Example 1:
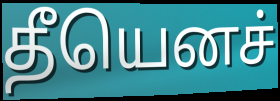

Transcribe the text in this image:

தீயெனச்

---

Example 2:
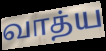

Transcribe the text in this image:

வாத்ய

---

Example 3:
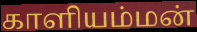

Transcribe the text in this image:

காளியம்மன்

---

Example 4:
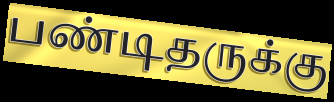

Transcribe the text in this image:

பண்டிதருக்கு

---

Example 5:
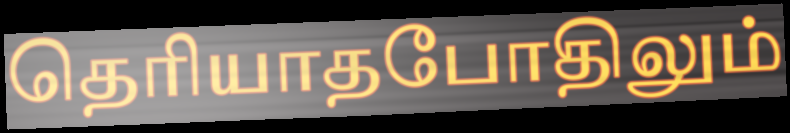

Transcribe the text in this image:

தெரியாதபோதிலும்